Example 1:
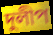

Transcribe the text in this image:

দুলীপ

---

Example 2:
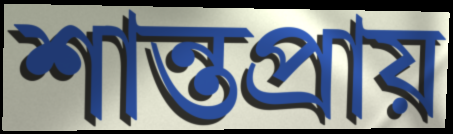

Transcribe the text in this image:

শান্তপ্রায়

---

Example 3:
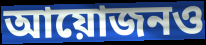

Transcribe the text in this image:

আয়োজনও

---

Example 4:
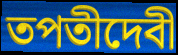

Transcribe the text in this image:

তপতীদেবী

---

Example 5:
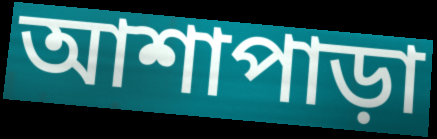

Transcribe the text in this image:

আশাপাড়া